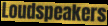
Loudspeakers